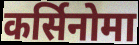
कर्सिनोमा